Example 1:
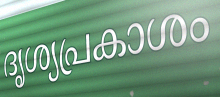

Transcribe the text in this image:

ദൃശ്യപ്രകാശം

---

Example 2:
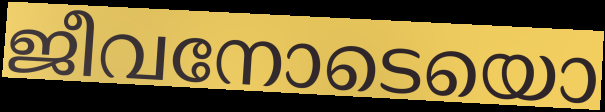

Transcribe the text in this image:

ജീവനോടെയൊ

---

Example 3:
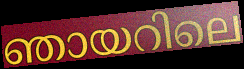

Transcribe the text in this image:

ഞായറിലെ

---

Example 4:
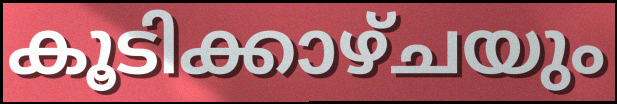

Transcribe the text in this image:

കൂടിക്കാഴ്ചയും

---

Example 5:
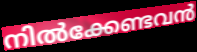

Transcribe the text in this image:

നിൽക്കേണ്ടവൻ